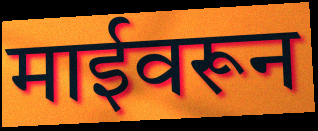
माईवरून